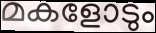
മകളോടും